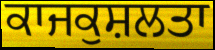
ਕਾਜਕੁਸ਼ਲਤਾ